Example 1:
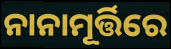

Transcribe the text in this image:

ନାନାମୂର୍ତ୍ତିରେ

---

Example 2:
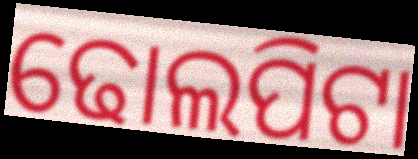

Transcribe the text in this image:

ଢୋଲପିଟା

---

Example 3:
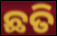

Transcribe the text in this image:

ଛତି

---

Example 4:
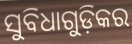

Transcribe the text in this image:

ସୁବିଧାଗୁଡ଼ିକର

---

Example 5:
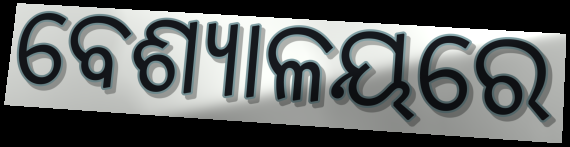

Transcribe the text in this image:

ବେଶ୍ୟାଳୟରେ